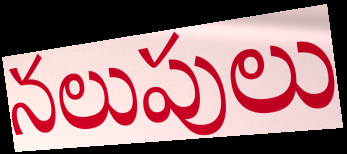
నలుపులు